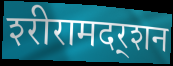
श्रीरामदर्शन